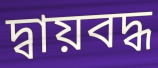
দ্বায়বদ্ধ